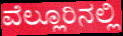
ವೆಲ್ಲೂರಿನಲ್ಲಿ